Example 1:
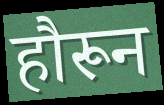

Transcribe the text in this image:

हौरून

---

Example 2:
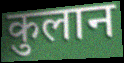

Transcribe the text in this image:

कुलान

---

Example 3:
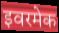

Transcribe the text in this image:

इवरमेक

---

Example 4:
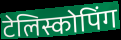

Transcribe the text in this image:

टेलिस्कोपिंग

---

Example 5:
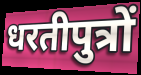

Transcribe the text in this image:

धरतीपुत्रों